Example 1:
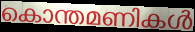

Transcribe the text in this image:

കൊന്തമണികൾ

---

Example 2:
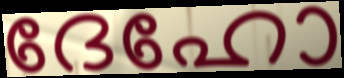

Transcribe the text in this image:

ദേഹോ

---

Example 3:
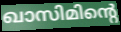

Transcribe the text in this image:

ഖാസിമിന്റെ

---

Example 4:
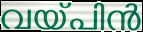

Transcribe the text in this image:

വയ്പിൻ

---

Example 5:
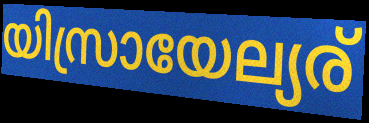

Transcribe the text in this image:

യിസ്രായേല്യര്